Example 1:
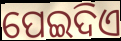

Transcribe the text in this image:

ପେଇଦିଏ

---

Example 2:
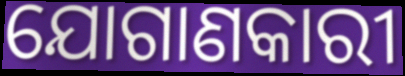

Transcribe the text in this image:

ଯୋଗାଣକାରୀ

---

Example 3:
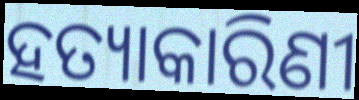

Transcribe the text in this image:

ହତ୍ୟାକାରିଣୀ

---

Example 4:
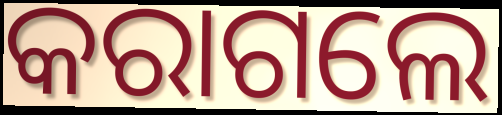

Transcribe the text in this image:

କରାଗଲେ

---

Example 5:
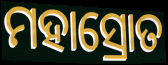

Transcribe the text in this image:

ମହାସ୍ରୋତ